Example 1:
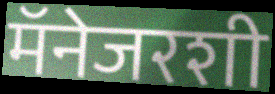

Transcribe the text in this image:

मॅनेजरशी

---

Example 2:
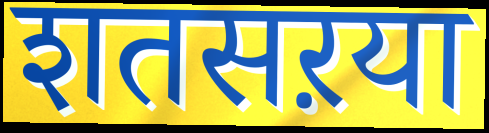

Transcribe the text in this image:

शतसऱया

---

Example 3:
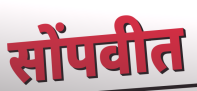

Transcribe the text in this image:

सोंपवीत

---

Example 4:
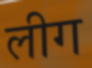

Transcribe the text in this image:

लीग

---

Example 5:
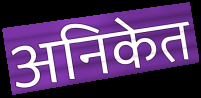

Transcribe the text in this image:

अनिकेत